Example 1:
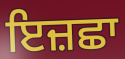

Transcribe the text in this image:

ਇਜ਼ਛਾ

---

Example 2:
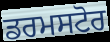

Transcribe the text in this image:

ਡਰਮਸਟੋਰ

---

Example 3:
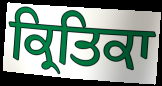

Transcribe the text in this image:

ਕ੍ਰਿਤਿਕਾ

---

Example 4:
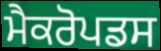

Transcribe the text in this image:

ਮੈਕਰੋਪਡਸ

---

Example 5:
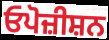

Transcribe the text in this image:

ਓਪੋਜ਼ੀਸ਼ਨ